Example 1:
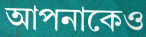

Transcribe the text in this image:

আপনাকেও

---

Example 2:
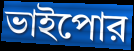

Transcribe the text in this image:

ভাইপোর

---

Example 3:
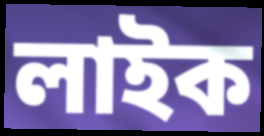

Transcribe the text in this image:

লাইক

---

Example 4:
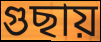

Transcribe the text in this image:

গুছায়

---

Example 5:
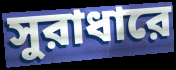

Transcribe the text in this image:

সুরাধারে